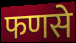
फणसे